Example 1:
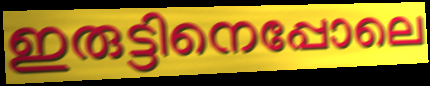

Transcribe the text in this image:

ഇരുട്ടിനെപ്പോലെ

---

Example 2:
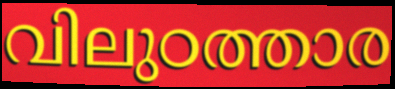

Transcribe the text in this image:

വിലുഠത്താര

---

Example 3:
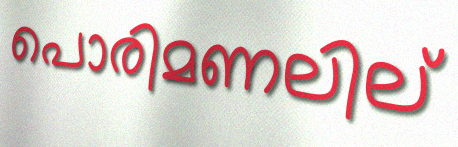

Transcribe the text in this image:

പൊരിമണലില്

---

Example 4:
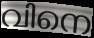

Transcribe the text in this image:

വിനെ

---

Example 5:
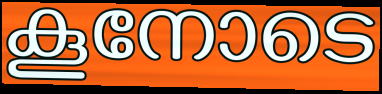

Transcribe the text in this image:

കൂനോടെ